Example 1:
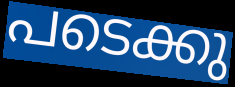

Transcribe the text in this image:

പടെക്കു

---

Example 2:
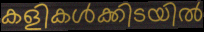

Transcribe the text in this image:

കളികൾക്കിടയിൽ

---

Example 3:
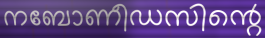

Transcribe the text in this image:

നബോണീഡസിന്റെ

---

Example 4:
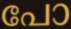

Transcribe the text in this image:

പോ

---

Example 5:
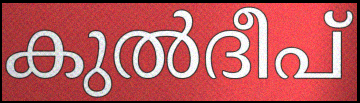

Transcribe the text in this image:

കുൽദീപ്